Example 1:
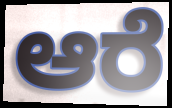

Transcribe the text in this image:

ಆರೆ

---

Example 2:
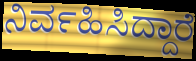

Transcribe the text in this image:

ನಿರ್ವಹಿಸಿದ್ದಾರೆ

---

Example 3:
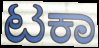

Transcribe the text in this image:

ಟಕಾ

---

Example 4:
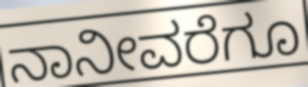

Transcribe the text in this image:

ನಾನೀವರೆಗೂ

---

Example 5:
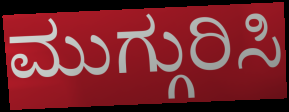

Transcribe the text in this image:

ಮುಗ್ಗುರಿಸಿ